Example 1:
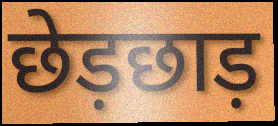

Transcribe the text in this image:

छेड़छाड़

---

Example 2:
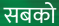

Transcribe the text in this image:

सबको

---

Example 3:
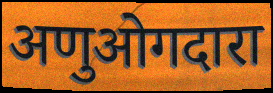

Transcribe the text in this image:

अणुओगदारा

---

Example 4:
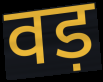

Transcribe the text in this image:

वड़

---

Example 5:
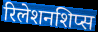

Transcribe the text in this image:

रिलेशनशिप्स